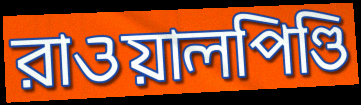
রাওয়ালপিণ্ডি